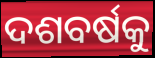
ଦଶବର୍ଷକୁ